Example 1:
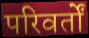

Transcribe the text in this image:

परिवर्तों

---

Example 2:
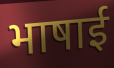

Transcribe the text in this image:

भाषाई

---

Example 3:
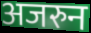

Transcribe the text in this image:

अजरुन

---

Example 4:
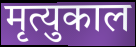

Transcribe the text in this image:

मृत्युकाल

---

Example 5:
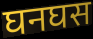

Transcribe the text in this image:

घनघस